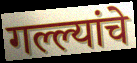
गल्ल्यांचे